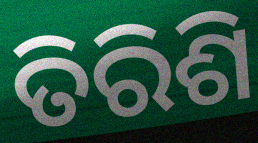
ତିରିଶି